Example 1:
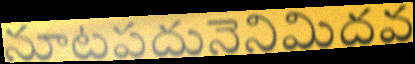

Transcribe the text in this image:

నూటపదునెనిమిదవ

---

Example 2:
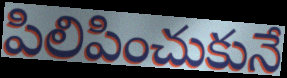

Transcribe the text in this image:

పిలిపించుకునే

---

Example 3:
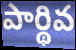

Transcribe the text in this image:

పార్థివ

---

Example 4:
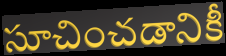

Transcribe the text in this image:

సూచించడానికీ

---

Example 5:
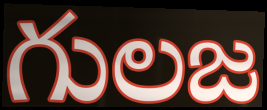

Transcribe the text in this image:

గులజ